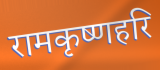
रामकृष्णहरि